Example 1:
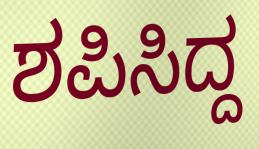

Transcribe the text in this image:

ಶಪಿಸಿದ್ದ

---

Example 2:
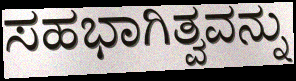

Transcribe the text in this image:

ಸಹಭಾಗಿತ್ವವನ್ನು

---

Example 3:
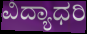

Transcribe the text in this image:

ವಿದ್ಯಾಧರಿ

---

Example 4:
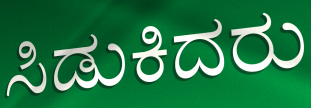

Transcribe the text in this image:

ಸಿಡುಕಿದರು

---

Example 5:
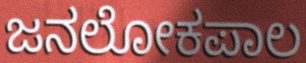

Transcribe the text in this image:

ಜನಲೋಕಪಾಲ